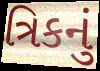
ત્રિકનું